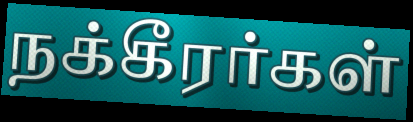
நக்கீரர்கள்